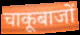
चाकूबाजों